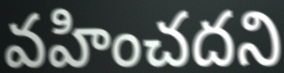
వహించదని